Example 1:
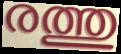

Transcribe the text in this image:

രത്തു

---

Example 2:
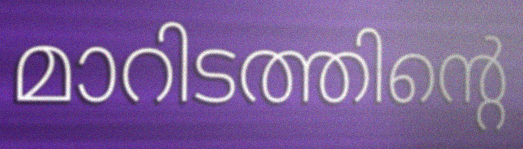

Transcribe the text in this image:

മാറിടത്തിന്റെ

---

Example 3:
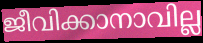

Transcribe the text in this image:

ജീവിക്കാനാവില്ല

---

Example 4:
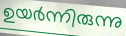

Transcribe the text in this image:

ഉയർന്നിരുന്നു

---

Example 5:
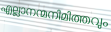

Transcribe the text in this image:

എല്ലാനന്മനിമിത്തവും